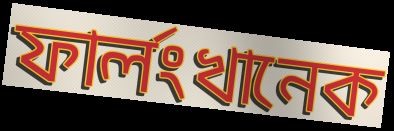
ফার্লংখানেক